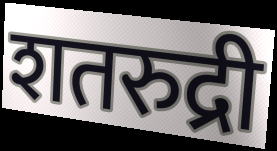
शतरुद्री